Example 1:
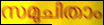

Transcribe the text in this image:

സമുചിതാം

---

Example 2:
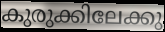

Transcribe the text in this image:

കുരുക്കിലേക്കു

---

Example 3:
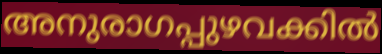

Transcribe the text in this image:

അനുരാഗപ്പുഴവക്കിൽ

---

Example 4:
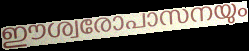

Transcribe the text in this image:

ഈശ്വരോപാസനയും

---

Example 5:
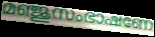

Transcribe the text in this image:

മഞ്ജുസംഭാഷണേ